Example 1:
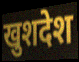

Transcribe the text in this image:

खुशदेश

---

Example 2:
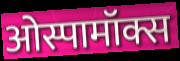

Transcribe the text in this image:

ओस्पामॉक्स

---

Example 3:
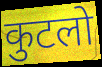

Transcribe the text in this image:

कुटलो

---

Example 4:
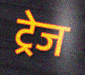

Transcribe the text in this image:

ट्रेज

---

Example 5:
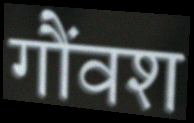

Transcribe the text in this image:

गौंवश